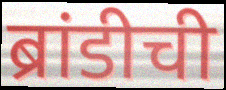
ब्रांडीची